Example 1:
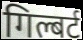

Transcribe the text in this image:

गिल्बर्ट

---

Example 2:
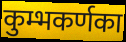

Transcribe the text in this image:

कुम्भकर्णका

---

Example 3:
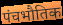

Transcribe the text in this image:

पंचभौतिक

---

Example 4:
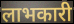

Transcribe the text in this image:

लाभकारी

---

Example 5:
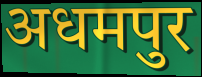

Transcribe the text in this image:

अधमपुर